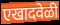
एखादवेळी